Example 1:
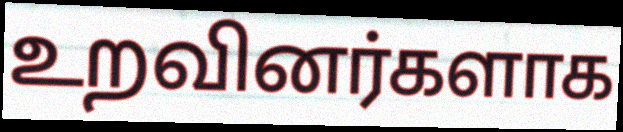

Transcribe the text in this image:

உறவினர்களாக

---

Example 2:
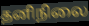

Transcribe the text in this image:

தனிநிலை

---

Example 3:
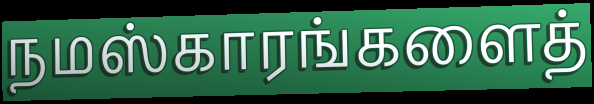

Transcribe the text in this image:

நமஸ்காரங்களைத்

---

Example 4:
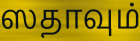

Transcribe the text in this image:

ஸதாவும்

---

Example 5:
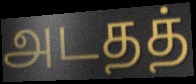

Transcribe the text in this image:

அடதத்